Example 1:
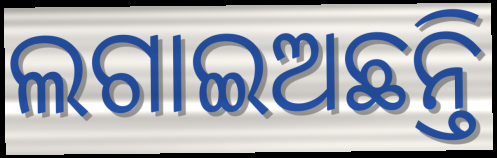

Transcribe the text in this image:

ଲଗାଇଅଛନ୍ତି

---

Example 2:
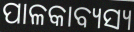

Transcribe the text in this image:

ପାଳକାବ୍ୟସ୍ୟ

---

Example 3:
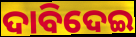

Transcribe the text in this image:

ଦାବିଦେଇ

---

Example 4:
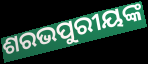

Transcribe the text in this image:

ଶରଭପୁରୀୟଙ୍କ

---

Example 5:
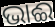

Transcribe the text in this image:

ଭାଈ